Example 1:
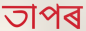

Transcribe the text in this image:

তাপৰ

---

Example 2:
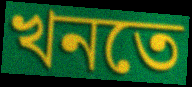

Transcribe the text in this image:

খনতে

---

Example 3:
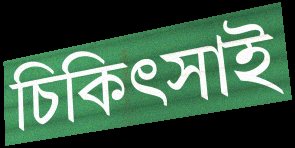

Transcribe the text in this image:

চিকিৎসাই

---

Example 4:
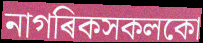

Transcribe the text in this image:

নাগৰিকসকলকো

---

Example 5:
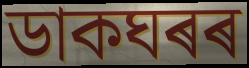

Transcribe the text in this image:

ডাকঘৰৰ